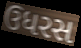
ઉધરસ